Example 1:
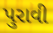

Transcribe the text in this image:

પુરાવી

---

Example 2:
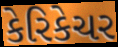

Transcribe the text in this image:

કેરિકેચર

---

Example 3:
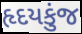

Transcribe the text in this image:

હૃદયકુંજ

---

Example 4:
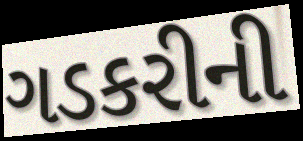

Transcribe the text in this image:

ગડકરીની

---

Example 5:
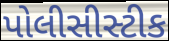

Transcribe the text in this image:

પોલીસીસ્ટીક